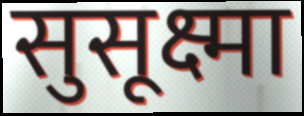
सुसूक्ष्मा